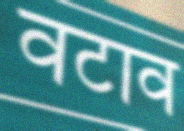
वटाव